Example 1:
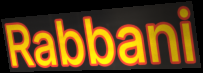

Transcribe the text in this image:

Rabbani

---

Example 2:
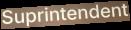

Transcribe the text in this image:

Suprintendent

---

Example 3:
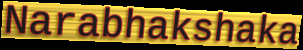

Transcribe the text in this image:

Narabhakshaka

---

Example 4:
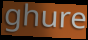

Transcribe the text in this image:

ghure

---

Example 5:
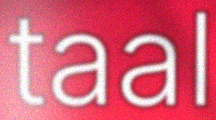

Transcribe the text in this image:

taal